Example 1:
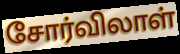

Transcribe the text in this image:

சோர்விலாள்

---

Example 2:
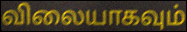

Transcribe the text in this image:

விலையாகவும்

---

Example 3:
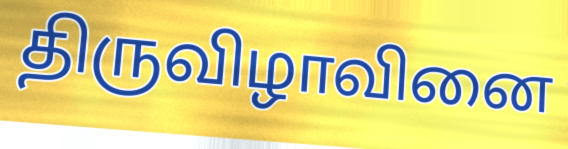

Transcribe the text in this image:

திருவிழாவினை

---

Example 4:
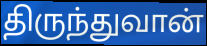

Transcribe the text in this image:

திருந்துவான்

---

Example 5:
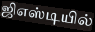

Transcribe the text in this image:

ஜிஎஸ்டியில்